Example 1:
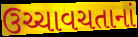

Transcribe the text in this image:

ઉચ્ચાવચતાનાં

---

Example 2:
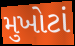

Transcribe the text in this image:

મુખોટાં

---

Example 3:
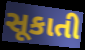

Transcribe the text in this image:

સૂકાતી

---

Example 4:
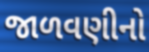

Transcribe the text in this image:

જાળવણીનો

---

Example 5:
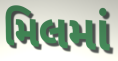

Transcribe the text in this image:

મિલમાં